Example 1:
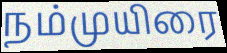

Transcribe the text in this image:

நம்முயிரை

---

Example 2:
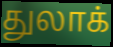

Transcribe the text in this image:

துலாக்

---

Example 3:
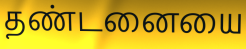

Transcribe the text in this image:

தண்டனையை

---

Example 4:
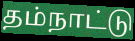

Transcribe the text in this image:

தம்நாட்டு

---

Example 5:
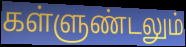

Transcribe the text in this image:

கள்ளுண்டலும்